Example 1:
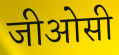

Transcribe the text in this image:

जीओसी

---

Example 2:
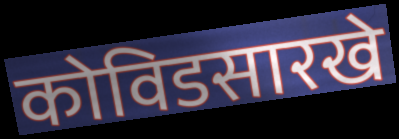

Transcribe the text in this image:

कोविडसारखे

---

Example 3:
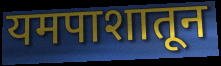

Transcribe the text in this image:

यमपाशातून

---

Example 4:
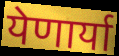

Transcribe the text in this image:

येणार्या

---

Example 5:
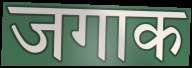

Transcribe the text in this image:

जगाक